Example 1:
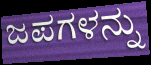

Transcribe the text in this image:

ಜಪಗಳನ್ನು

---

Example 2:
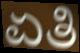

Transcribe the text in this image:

ಏತಿ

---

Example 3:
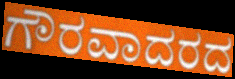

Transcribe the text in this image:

ಗೌರವಾದರದ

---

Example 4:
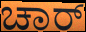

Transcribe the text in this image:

ಚಾರ್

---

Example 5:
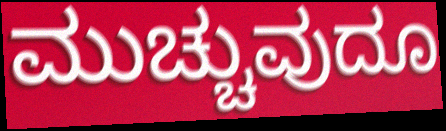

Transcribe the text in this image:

ಮುಚ್ಚುವುದೂ